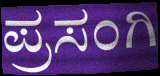
ಪ್ರಸಂಗಿ